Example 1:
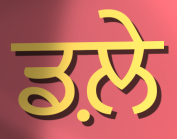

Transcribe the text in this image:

ਡਲ਼ੇ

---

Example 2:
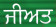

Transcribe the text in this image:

ਜੀਅਤ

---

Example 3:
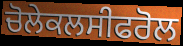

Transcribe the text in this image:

ਚੋਲੇਕਲਸੀਫਰੋਲ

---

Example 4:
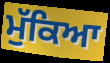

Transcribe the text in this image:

ਮੁੱਕਿਆ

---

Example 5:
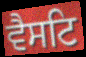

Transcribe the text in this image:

ਵੈਸਟਿ